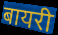
बायरी